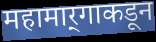
महामार्गाकडून